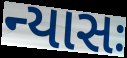
ન્યાસઃ